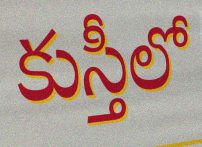
కుస్తీలో